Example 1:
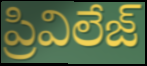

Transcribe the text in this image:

ప్రివిలేజ్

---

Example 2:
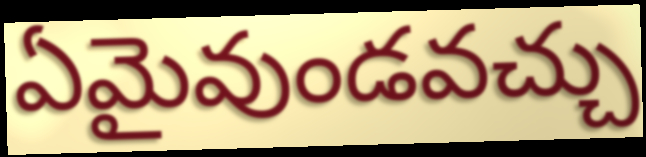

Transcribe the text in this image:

ఏమైవుండవచ్చు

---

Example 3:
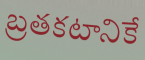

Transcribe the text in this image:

బ్రతకటానికే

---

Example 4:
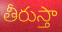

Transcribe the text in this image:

తీరుస్తా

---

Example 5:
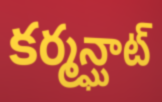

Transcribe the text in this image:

కర్మన్ఘాట్